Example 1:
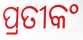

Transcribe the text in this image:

ପ୍ରତୀକଂ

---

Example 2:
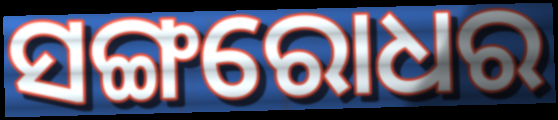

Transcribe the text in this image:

ସଙ୍ଗରୋଧର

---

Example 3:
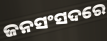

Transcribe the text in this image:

ଜନସଂସଦରେ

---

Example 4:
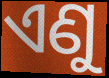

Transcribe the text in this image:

ଏଣୁ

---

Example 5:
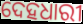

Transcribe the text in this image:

ଦେହଧାରୀ